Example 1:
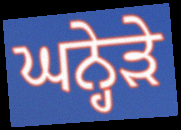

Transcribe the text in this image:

ਘਨ੍ਹੇੜੇ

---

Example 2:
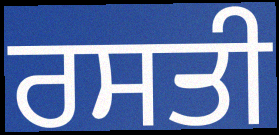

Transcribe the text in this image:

ਰਸਤੀ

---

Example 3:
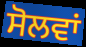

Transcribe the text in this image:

ਸੋਲਵਾਂ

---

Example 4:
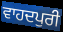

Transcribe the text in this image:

ਵਾਹਦਪੁਰੀ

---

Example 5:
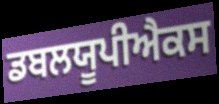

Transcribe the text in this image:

ਡਬਲਯੂਪੀਐਕਸ